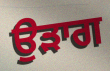
ਉੜਾਗ